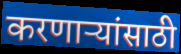
करणाऱ्यांसाठी